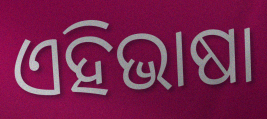
ଏହିଭାଷା